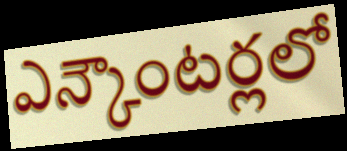
ఎన్కౌంటర్లలో